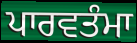
ਪਾਰਵਤੰਮਾ